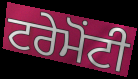
ਟਰੇਮੋਂਟੀ